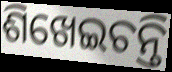
ଶିଖେଇଚନ୍ତି